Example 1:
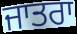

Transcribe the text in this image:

ਜਾਤਰਾ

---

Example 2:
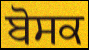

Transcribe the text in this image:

ਬੋਸਕ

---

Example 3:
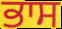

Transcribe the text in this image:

ਭਾਸ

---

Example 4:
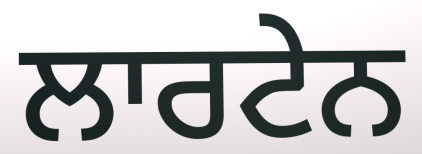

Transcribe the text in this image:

ਲਾਰਟੇਨ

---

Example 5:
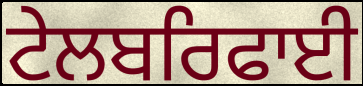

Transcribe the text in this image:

ਟੇਲਬਰਿਫਾਈ